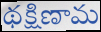
థక్షిణామ